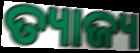
ତ୍ୟାଜ୍ୟ